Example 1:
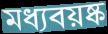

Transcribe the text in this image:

মধ্যবয়ষ্ক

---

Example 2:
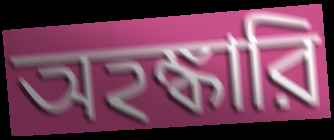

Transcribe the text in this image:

অহঙ্কারি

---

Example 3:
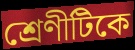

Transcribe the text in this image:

শ্রেণীটিকে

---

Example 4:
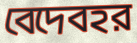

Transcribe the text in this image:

বেদেবহর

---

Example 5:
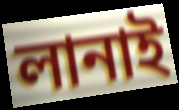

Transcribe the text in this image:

লানাই